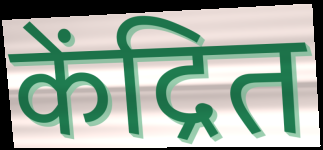
केंद्रित